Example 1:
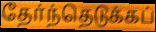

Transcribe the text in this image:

தேர்ந்தெடுக்கப்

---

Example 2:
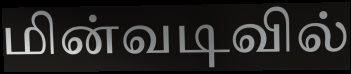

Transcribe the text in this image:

மின்வடிவில்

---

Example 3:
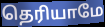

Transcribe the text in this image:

தெரியாமே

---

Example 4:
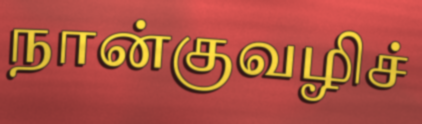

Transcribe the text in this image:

நான்குவழிச்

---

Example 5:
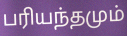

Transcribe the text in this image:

பரியந்தமும்